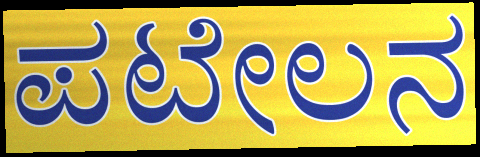
ಪಟೇಲನ